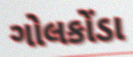
ગોલકોંડા